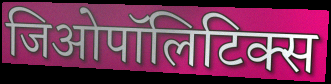
जिओपॉलिटिक्स